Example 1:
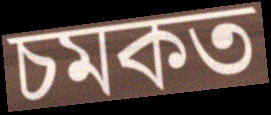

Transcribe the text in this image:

চমকত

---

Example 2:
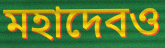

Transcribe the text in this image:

মহাদেবও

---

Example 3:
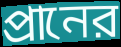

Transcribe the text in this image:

প্রানের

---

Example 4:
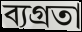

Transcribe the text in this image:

ব্যগ্রতা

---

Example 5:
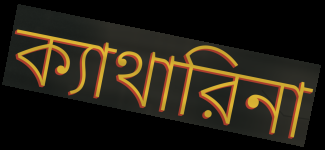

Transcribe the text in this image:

ক্যাথারিনা